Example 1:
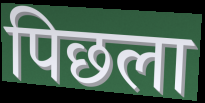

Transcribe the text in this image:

पिछला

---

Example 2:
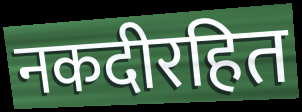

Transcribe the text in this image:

नकदीरहित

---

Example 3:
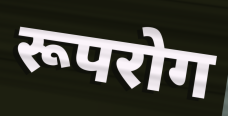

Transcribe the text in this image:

रूपरोग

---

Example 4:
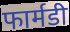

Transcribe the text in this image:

फार्मडी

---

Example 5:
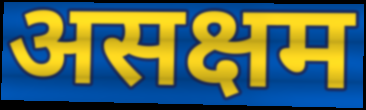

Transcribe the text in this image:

असक्षम